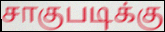
சாகுபடிக்கு